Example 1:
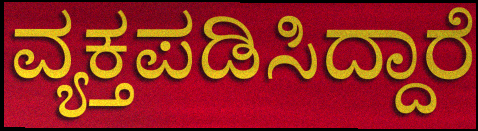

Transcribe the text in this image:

ವ್ಯಕ್ತಪಡಿಸಿದ್ದಾರೆ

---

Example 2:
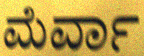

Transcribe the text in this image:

ಮೆರ್ವಾ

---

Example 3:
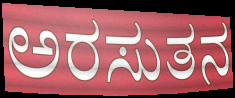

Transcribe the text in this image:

ಅರಸುತನ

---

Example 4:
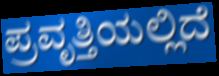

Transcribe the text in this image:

ಪ್ರವೃತ್ತಿಯಲ್ಲಿದೆ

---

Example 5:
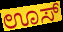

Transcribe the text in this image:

ಊಸ್